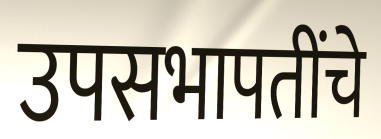
उपसभापतींचे